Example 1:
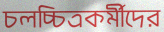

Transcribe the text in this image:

চলচ্চিত্রকর্মীদের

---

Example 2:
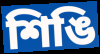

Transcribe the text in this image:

শিঙি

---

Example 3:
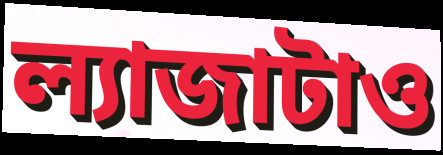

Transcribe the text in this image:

ল্যাজাটাও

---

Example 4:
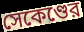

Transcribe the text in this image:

সেকেণ্ডের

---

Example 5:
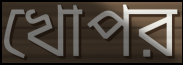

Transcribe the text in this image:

খোপর